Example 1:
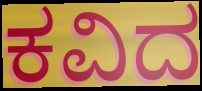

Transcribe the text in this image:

ಕವಿದ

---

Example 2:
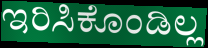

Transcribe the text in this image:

ಇರಿಸಿಕೊಂಡಿಲ್ಲ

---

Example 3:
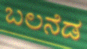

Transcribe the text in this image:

ಬಲನೆಡ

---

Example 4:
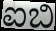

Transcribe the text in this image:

ಐಬಿ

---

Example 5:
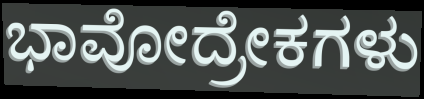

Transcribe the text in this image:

ಭಾವೋದ್ರೇಕಗಳು